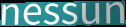
nessun